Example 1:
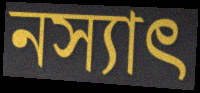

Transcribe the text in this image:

নস্যাৎ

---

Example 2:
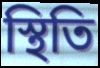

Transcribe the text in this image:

স্থিতি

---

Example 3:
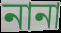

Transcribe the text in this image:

নানা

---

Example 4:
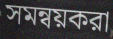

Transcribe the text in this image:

সমন্বয়করা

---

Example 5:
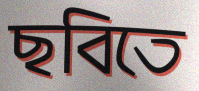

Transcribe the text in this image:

ছবিতে